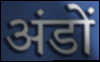
अंडों